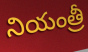
నియంత్రీ